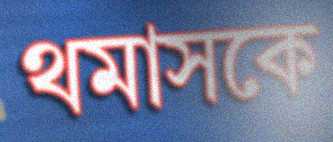
থমাসকে